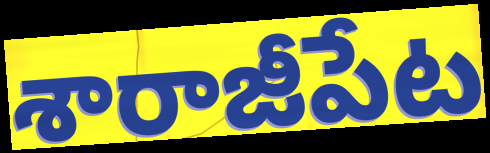
శారాజీపేట